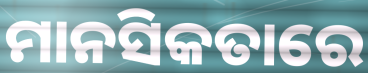
ମାନସିକତାରେ